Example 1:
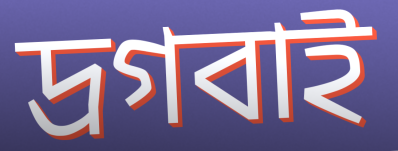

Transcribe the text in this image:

দ্রগবাই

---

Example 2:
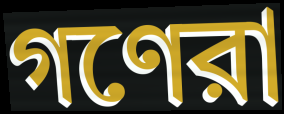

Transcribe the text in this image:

গণেরা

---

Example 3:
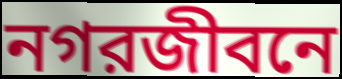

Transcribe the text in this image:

নগরজীবনে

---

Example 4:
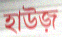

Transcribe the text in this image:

হাউজ়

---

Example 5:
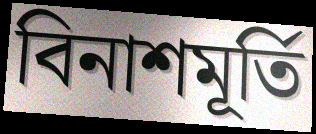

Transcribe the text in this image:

বিনাশমূর্তি